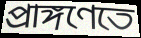
প্রাঙ্গণেতে